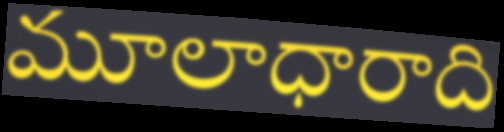
మూలాధారాది